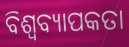
ବିଶ୍ୱବ୍ୟାପକତା